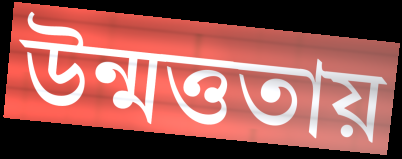
উন্মত্ততায়